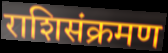
राशिसंक्रमण